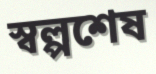
স্বল্পশেষ